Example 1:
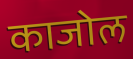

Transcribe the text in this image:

काजोल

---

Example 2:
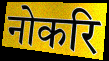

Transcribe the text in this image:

नोकरि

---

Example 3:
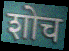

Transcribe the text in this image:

शोच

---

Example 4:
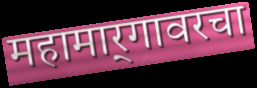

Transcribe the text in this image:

महामार्गावरचा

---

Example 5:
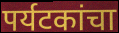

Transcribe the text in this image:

पर्यटकांचा